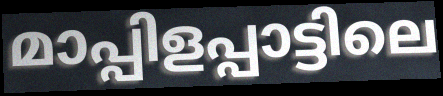
മാപ്പിളപ്പാട്ടിലെ